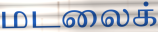
மடலைக்